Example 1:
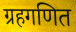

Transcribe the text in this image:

ग्रहगणित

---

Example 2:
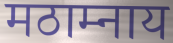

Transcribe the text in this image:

मठाम्नाय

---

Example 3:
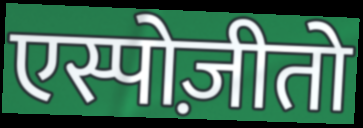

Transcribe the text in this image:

एस्पोज़ीतो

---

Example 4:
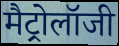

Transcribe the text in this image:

मैट्रोलॉजी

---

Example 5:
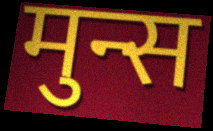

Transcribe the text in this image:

मुन्स